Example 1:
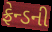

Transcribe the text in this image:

ફ્રેન્ડની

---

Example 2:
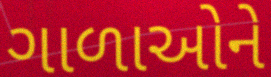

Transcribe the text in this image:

ગાળાઓને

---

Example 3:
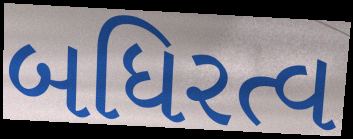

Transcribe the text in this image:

બધિરત્વ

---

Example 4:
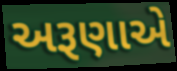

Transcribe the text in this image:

અરૂણાએ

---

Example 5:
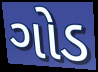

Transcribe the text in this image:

ગોડ